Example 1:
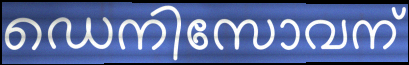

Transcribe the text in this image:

ഡെനിസോവന്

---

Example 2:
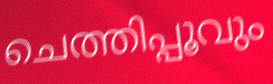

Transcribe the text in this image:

ചെത്തിപ്പൂവും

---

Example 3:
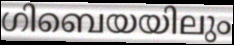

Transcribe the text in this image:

ഗിബെയയിലും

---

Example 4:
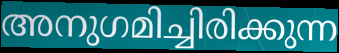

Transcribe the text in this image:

അനുഗമിച്ചിരിക്കുന്ന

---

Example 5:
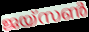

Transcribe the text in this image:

ജയ്സൺ